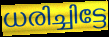
ധരിച്ചിട്ടേ